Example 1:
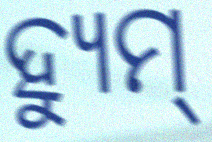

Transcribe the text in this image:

ହ୍ୟୁମ୍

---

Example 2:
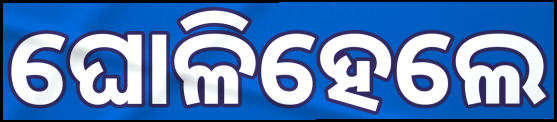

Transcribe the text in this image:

ଘୋଳିହେଲେ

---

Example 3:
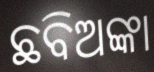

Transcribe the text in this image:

ଛବିଅଙ୍କା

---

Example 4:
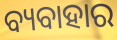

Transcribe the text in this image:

ବ୍ୟବାହାର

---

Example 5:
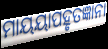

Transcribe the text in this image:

ମାୟୟାପହୃତଜ୍ଞାନା